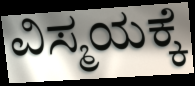
ವಿಸ್ಮಯಕ್ಕೆ